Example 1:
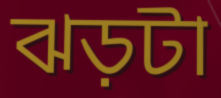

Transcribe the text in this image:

ঝড়টা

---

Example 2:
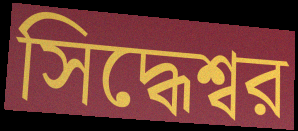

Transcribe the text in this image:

সিদ্ধেশ্বর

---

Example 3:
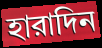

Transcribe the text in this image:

হারাদিন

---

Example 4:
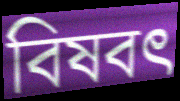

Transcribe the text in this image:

বিষবৎ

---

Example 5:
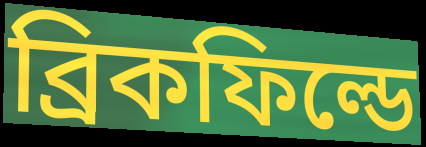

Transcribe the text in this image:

ব্রিকফিল্ডে